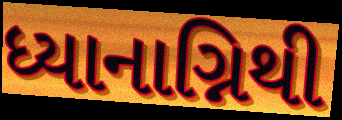
ધ્યાનાગ્નિથી